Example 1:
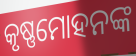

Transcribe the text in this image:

କୃଷ୍ଣମୋହନଙ୍କ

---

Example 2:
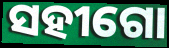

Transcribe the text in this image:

ସହୀଗୋ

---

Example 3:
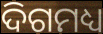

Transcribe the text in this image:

ଦିଗମଧ୍ୟ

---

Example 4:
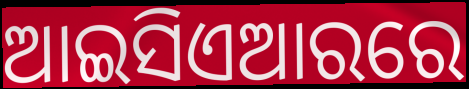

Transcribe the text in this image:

ଆଇସିଏଆରରେ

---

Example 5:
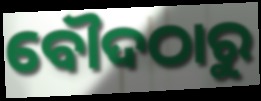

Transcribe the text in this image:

ବୌଦଠାରୁ